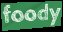
foody